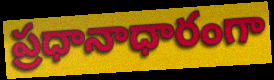
ప్రధానాధారంగా